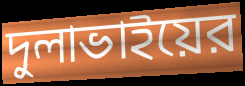
দুলাভাইয়ের